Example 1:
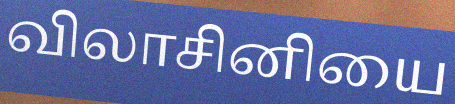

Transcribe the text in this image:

விலாசினியை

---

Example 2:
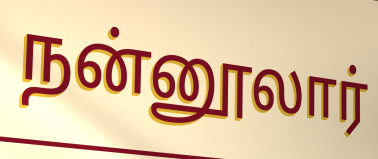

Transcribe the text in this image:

நன்னூலார்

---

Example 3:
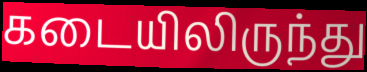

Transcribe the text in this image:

கடையிலிருந்து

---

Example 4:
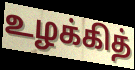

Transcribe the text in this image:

உழக்கித்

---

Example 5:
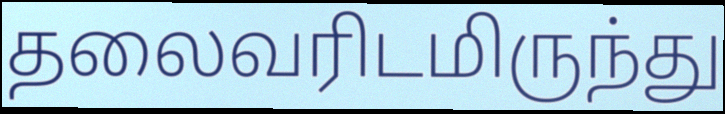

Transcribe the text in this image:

தலைவரிடமிருந்து